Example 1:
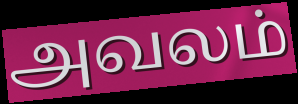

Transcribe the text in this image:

அவலம்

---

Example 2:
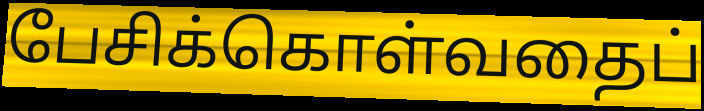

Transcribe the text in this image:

பேசிக்கொள்வதைப்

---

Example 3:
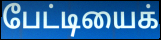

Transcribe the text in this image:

பேட்டியைக்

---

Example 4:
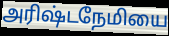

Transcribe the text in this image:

அரிஷ்டநேமியை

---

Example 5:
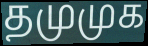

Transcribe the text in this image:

தமுமுக